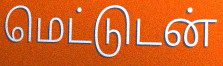
மெட்டுடன்